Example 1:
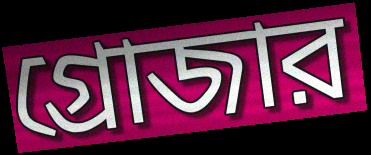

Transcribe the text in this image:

গ্রোজার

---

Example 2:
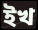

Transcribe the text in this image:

ইখ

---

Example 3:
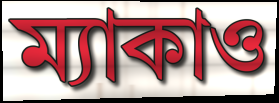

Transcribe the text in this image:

ম্যাকাও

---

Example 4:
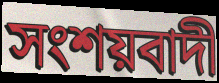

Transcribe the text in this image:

সংশয়বাদী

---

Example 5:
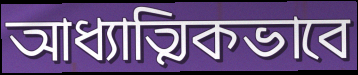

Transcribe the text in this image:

আধ্যাত্মিকভাবে